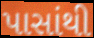
પાસાંથી